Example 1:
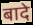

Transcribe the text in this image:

बादे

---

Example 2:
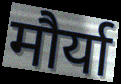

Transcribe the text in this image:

मौर्या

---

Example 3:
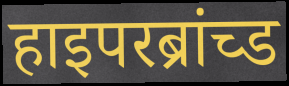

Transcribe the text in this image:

हाइपरब्रांच्ड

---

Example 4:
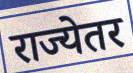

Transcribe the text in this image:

राज्येतर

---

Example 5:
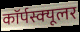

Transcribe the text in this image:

कॉर्पस्क्यूलर